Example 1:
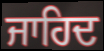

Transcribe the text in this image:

ਜਾਹਿਦ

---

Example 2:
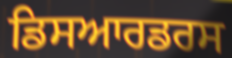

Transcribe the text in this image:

ਡਿਸਆਰਡਰਸ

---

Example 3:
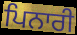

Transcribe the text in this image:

ਪਿਨਾਰੀ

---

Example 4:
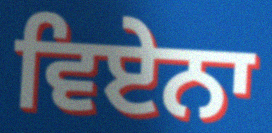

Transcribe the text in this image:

ਵਿਏਨਾ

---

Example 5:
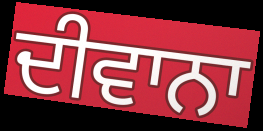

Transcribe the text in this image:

ਦੀਵਾਨਾ